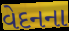
વેદનના